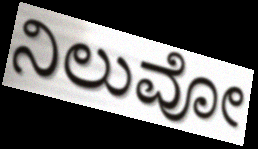
ನಿಲುವೋ